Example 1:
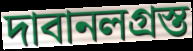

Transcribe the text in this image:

দাবানলগ্রস্ত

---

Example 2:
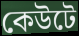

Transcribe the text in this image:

কেউটে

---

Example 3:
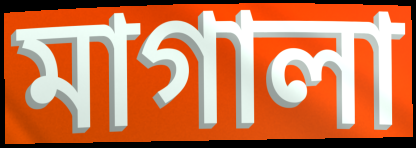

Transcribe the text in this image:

মাগালা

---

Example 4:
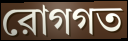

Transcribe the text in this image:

রোগগত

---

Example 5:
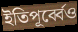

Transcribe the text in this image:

ইতিপূর্ব্বেও